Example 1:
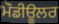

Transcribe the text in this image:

ਮੌਡੀਊਲਰ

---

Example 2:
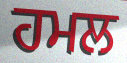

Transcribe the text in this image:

ਹਮਲ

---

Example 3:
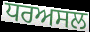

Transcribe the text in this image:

ਧਰਅਸਲ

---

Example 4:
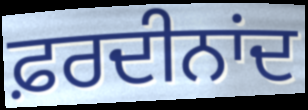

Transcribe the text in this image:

ਫ਼ਰਦੀਨਾਂਦ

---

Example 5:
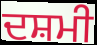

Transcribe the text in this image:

ਦਸ਼ਮੀ